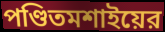
পণ্ডিতমশাইয়ের